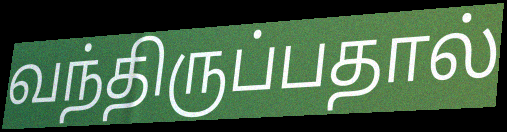
வந்திருப்பதால்